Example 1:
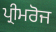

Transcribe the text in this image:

ਪ੍ਰੀਮਰੋਜ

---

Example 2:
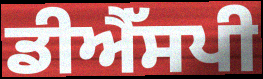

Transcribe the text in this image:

ਡੀਐੱਸਪੀ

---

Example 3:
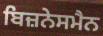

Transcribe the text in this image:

ਬਿਜ਼ਨੇਸਮੈਨ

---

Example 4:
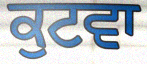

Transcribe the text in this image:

ਕੁਟਵਾ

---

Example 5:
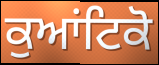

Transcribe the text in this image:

ਕੁਆਂਟਿਕੋ